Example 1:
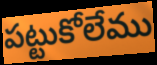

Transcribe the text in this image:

పట్టుకోలేము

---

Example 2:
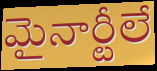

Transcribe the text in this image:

మైనార్టీలే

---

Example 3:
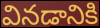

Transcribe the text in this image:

వినడానికి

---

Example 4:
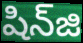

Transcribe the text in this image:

షిన్‌జి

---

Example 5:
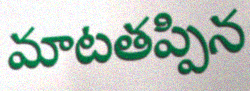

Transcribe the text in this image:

మాటతప్పిన